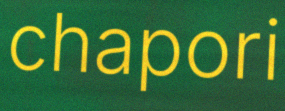
chapori